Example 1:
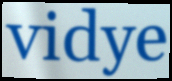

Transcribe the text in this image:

vidye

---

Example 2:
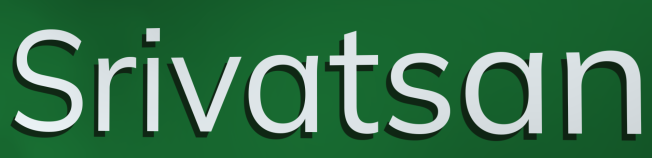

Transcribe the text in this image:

Srivatsan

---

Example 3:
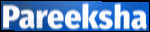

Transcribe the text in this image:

Pareeksha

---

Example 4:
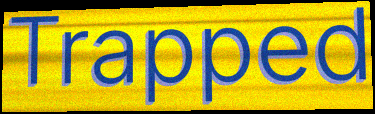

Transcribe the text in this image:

Trapped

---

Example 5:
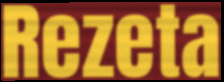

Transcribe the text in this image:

Rezeta